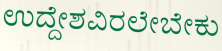
ಉದ್ದೇಶವಿರಲೇಬೇಕು